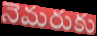
నెమరుకు